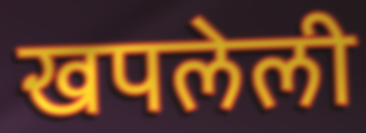
खपलेली